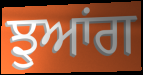
ਝੁਆਂਗ